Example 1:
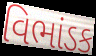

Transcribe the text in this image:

વિભાંડક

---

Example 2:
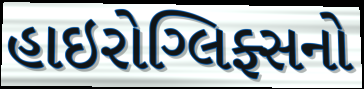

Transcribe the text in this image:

હાઇરોગ્લિફ્સનો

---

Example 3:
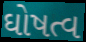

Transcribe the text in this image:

ઘોષત્વ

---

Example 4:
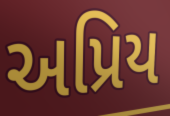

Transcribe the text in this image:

અપ્રિય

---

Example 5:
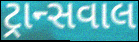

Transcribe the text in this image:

ટ્રાન્સવાલ